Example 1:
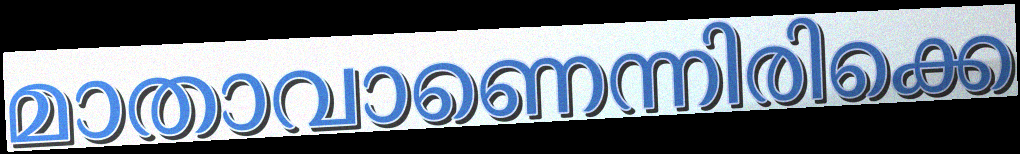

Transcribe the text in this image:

മാതാവാണെന്നിരിക്കെ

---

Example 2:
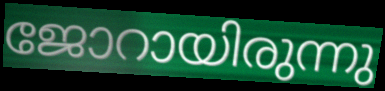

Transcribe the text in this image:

ജോറായിരുന്നു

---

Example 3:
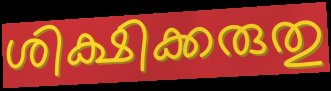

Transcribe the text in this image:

ശിക്ഷിക്കരുതു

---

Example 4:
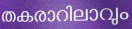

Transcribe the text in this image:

തകരാറിലാവും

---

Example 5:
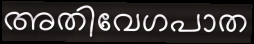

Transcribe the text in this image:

അതിവേഗപാത